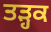
ਤੜ੍ਹਕ